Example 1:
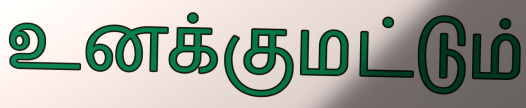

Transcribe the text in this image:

உனக்குமட்டும்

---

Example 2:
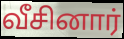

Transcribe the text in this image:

வீசினார்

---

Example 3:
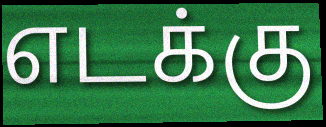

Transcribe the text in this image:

எடக்கு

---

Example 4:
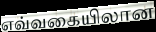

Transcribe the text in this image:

எவ்வகையிலான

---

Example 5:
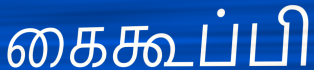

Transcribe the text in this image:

கைகூப்பி